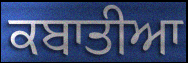
ਕਬਾਤੀਆ